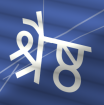
श्रैष्ठ